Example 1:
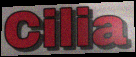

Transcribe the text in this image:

Cilia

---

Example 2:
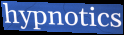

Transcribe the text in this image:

hypnotics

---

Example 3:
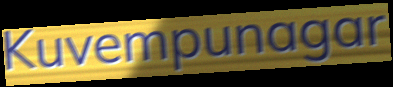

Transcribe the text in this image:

Kuvempunagar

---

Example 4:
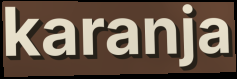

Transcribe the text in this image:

karanja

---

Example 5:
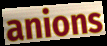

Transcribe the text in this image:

anions